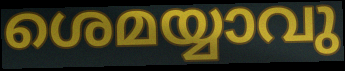
ശെമയ്യാവു